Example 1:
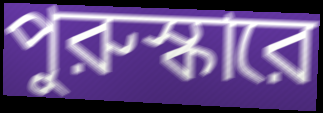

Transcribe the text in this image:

পুরুস্কারে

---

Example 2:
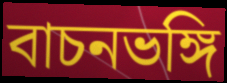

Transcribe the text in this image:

বাচনভঙ্গি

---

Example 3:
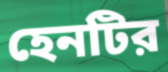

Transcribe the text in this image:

হেনটির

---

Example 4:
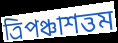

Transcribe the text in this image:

ত্রিপঞ্চাশত্তম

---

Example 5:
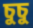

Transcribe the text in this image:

চুচু